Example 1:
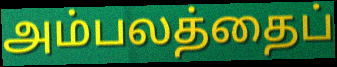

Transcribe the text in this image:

அம்பலத்தைப்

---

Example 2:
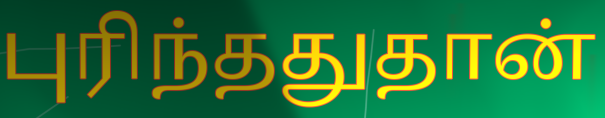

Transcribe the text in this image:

புரிந்ததுதான்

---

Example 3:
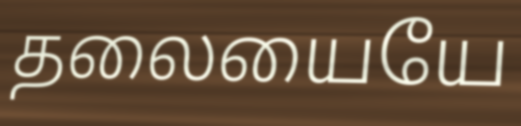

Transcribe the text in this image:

தலையையே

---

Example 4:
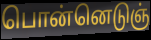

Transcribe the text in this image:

பொன்னெடுஞ்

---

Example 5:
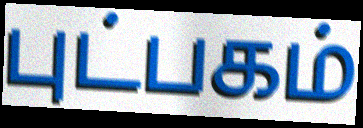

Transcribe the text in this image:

புட்பகம்